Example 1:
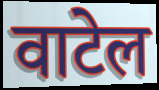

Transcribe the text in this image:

वाटेल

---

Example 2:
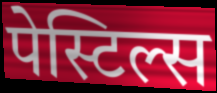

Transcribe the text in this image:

पेस्टिल्स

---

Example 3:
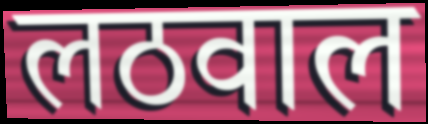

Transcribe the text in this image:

लठवाल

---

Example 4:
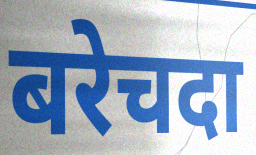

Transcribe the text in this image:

बरेचदा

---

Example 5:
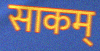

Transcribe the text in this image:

साकम्